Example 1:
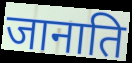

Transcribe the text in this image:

जानाति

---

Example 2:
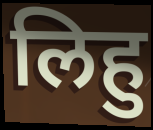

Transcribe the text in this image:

लिहु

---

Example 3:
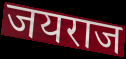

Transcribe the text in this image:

जयराज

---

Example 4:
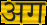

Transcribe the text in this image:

अग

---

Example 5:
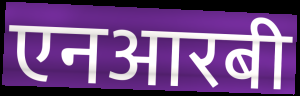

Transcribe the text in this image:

एनआरबी